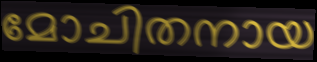
മോചിതനായ